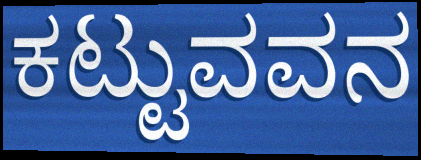
ಕಟ್ಟುವವನ